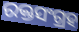
ରକ୍ତସଂଗ୍ରହ